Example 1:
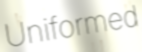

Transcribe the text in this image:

Uniformed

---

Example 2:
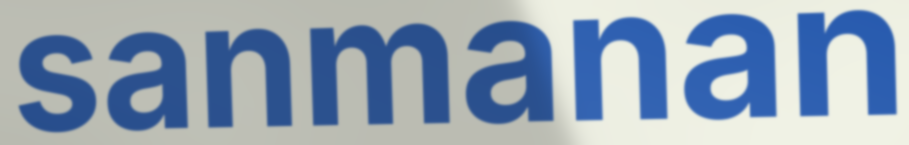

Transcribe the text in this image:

sanmanan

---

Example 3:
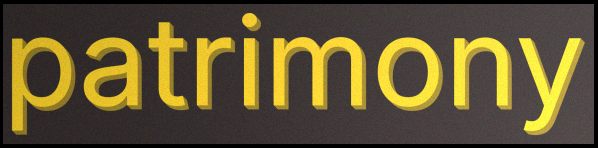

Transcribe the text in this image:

patrimony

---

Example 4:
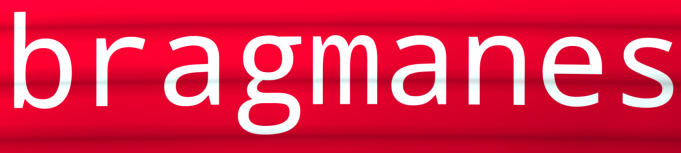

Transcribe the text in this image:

bragmanes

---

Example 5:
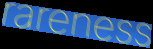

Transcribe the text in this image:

rareness